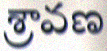
శ్రావణ